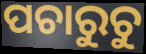
ପଚାରୁଚୁ